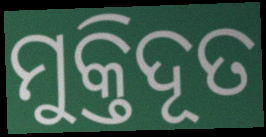
ମୁକ୍ତିଦୂତ